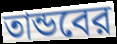
তান্ডবের